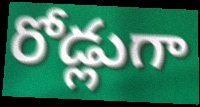
రోడ్లుగా